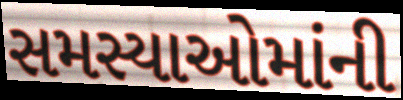
સમસ્યાઓમાંની